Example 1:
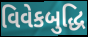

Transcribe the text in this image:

વિવેકબુદ્ધિ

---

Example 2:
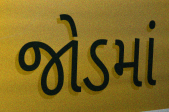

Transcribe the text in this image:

જોડમાં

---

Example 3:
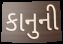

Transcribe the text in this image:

કાનુની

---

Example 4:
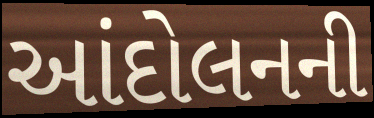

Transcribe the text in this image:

આંદોલનની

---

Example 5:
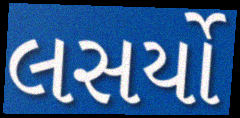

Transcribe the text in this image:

લસર્યો